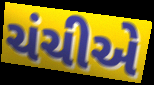
ચંચીએ